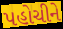
પહોચીને